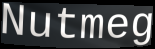
Nutmeg